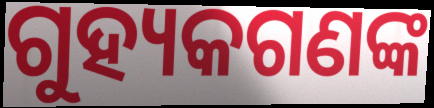
ଗୁହ୍ୟକଗଣଙ୍କ